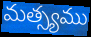
మత్స్యము